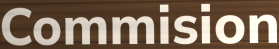
Commision